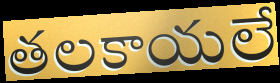
తలకాయలే